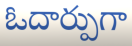
ఓదార్పుగా